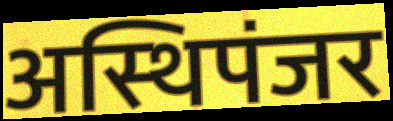
अस्थिपंजर